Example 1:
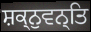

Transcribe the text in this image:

ਸ਼ਕ੍ਨੁਵਨ੍ਤਿ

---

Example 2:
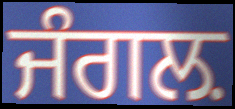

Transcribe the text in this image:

ਜੰਗਲ਼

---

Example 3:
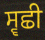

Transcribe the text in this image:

ਸ੍ਵਛੀ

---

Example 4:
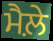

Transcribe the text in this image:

ਮੈਲ਼ੇ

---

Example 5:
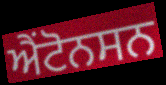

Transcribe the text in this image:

ਐਂਟੋਨਸਨ